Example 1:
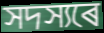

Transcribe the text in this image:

সদস্যৰে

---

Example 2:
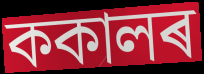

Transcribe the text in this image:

ককালৰ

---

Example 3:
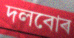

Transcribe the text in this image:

দলবোৰ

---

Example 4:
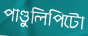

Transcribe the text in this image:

পাণ্ডুলিপিটো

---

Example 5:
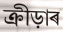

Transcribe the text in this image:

ক্ৰীড়াৰ